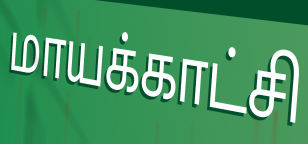
மாயக்காட்சி